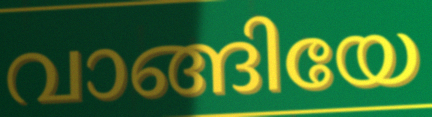
വാങ്ങിയേ